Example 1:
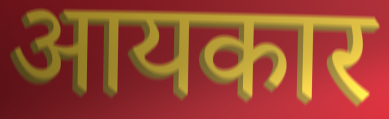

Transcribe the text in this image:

आयकार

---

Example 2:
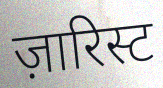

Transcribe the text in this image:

ज़ारिस्ट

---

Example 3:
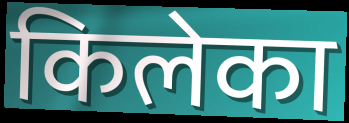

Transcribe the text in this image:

किलेका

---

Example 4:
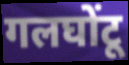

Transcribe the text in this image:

गलघोंटू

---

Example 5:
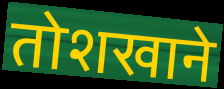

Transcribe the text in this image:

तोशखाने